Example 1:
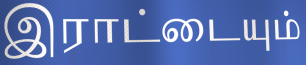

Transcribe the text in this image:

இராட்டையும்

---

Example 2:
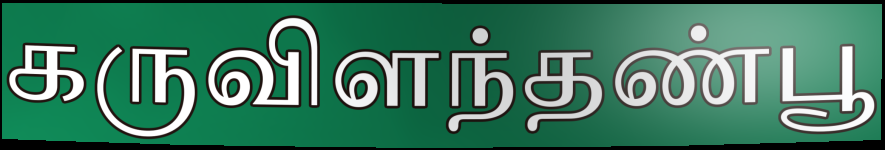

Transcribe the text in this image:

கருவிளந்தண்பூ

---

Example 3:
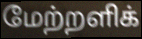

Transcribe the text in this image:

மேற்றளிக்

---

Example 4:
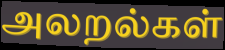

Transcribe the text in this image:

அலறல்கள்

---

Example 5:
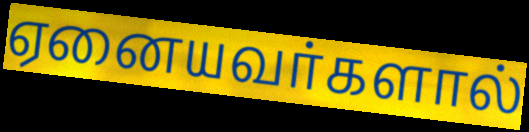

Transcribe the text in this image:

ஏனையவர்களால்